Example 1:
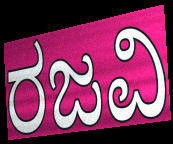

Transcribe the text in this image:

ರಜವಿ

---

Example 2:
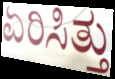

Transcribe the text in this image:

ಏರಿಸಿತ್ತು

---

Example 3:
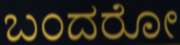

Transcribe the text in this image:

ಬಂದರೋ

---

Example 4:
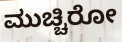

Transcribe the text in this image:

ಮುಚ್ಚಿರೋ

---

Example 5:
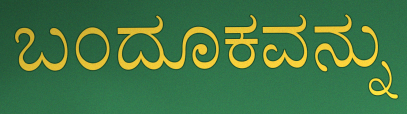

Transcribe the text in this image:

ಬಂದೂಕವನ್ನು